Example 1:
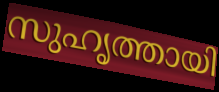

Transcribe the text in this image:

സുഹൃത്തായി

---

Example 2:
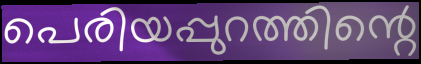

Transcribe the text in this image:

പെരിയപ്പുറത്തിന്റെ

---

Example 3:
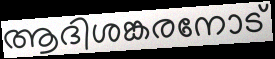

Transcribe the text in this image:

ആദിശങ്കരനോട്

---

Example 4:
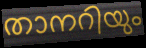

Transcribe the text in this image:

താനറിയും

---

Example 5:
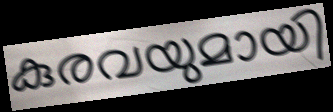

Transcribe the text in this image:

കുരവയുമായി